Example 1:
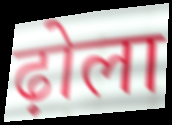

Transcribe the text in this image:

ढ़ोला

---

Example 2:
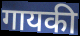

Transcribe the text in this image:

गायकी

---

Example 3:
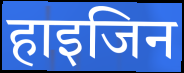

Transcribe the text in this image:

हाइजिन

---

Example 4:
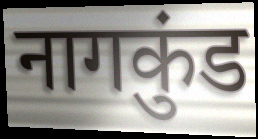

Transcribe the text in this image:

नागकुंड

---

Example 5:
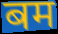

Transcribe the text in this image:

बम